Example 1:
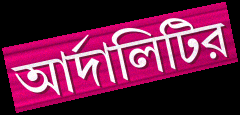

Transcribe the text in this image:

আর্দালিটির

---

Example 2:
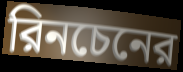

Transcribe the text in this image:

রিনচেনের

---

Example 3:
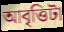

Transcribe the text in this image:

আবৃত্তিটা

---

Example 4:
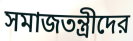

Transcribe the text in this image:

সমাজতন্ত্রীদের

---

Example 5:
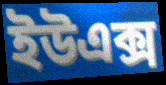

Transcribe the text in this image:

ইউএক্স